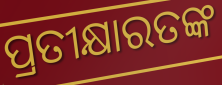
ପ୍ରତୀକ୍ଷାରତଙ୍କ